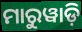
ମାରୁୱାଡ଼ି